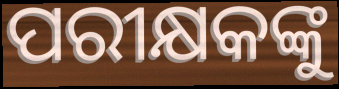
ପରୀକ୍ଷକଙ୍କୁ